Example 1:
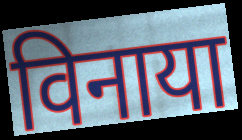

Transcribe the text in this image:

विनाया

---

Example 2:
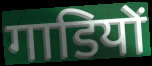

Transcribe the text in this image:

गाडियों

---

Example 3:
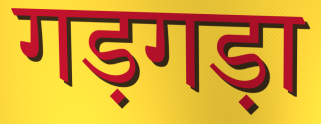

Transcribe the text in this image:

गड़गड़ा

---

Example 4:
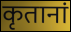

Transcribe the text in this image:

कृतानां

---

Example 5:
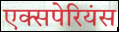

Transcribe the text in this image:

एक्सपेरियंस